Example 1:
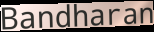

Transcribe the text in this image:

Bandharan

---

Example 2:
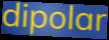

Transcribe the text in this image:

dipolar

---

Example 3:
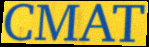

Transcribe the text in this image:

CMAT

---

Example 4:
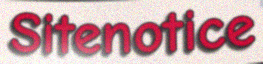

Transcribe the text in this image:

Sitenotice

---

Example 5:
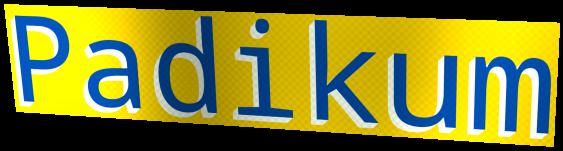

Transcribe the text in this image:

Padikum